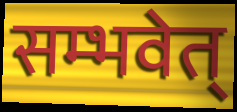
सम्भवेत्